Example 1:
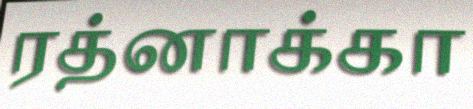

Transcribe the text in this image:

ரத்னாக்கா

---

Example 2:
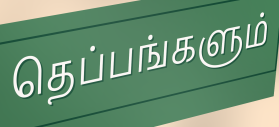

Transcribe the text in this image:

தெப்பங்களும்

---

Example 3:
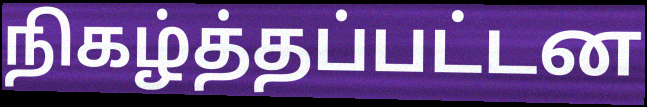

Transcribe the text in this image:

நிகழ்த்தப்பட்டன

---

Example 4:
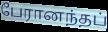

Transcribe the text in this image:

பேரானந்தப்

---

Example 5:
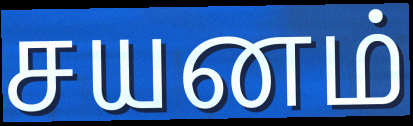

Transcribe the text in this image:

சயனம்